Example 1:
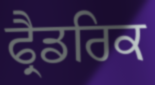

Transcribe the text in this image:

ਫ੍ਰੈਡਰਿਕ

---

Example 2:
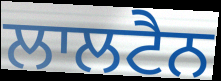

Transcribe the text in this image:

ਲਾਲਟੈਨ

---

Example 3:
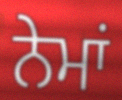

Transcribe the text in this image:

ਨੇਮਾਂ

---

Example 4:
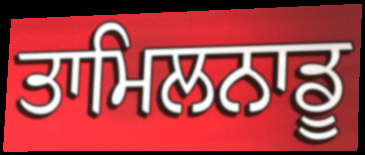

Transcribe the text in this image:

ਤਾਮਿਲਨਾਡੂ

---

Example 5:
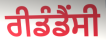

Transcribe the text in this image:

ਰੀਡੰਡੈਂਸੀ